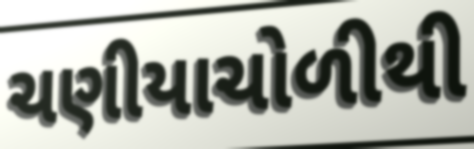
ચણીયાચોળીથી